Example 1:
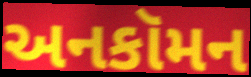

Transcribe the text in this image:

અનકૉમન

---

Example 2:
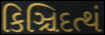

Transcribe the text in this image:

કિઞ્ચિદત્થં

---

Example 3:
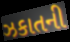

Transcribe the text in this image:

ઝકાતની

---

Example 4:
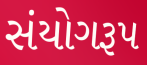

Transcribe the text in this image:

સંયોગરૂપ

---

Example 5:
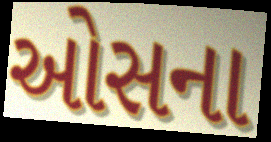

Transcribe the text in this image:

ઓસના